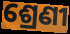
ଶ୍ରେଣୀ